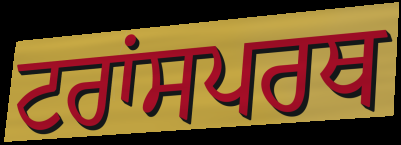
ਟਰਾਂਸਪਰਥ